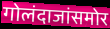
गोलंदाजांसमोर